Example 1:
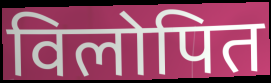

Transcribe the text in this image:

विलोपित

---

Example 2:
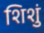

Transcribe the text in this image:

शिशुं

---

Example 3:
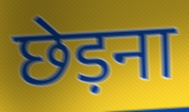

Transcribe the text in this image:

छेड़ना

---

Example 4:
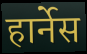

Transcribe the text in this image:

हार्नेस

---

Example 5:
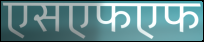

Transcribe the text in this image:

एसएफएफ